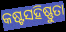
କଷ୍ଟସହିଷ୍ଣୁତା